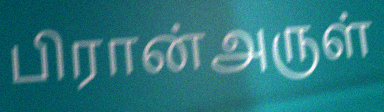
பிரான்அருள்